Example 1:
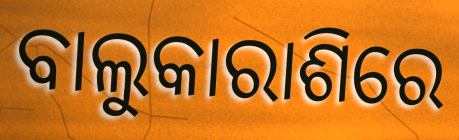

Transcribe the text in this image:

ବାଲୁକାରାଶିରେ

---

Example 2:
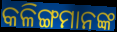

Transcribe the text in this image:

କଳିଙ୍ଗମାନଙ୍କ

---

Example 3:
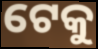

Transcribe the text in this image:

ଟେକୁ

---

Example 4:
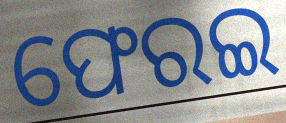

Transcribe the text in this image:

ଫେରଇ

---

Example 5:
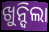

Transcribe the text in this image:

ଖୁନ୍ଦିଲା